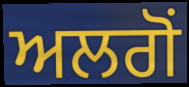
ਅਲਗੋਂ